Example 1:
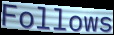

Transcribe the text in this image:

Follows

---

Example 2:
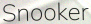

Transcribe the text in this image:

Snooker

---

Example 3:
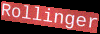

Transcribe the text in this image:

Rollinger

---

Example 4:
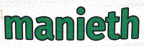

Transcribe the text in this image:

manieth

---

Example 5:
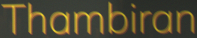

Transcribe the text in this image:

Thambiran